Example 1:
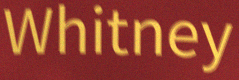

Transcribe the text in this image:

Whitney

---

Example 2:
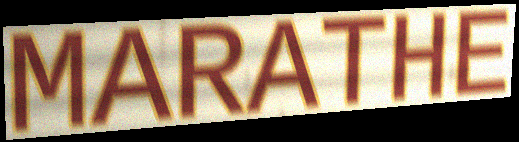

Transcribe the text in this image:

MARATHE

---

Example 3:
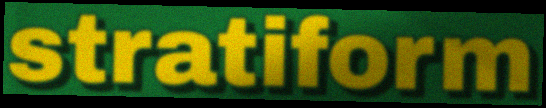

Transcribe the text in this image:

stratiform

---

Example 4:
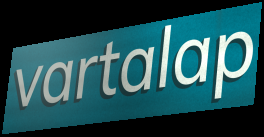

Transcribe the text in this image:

vartalap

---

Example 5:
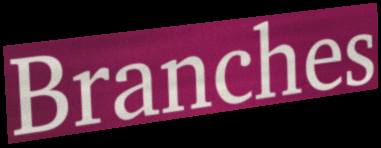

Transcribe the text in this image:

Branches